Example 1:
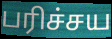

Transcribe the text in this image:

பரிச்சய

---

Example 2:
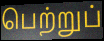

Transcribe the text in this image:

பெற்றுப்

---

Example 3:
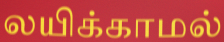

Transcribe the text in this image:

லயிக்காமல்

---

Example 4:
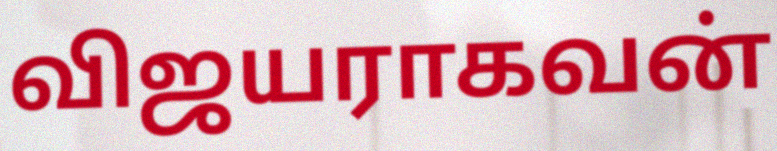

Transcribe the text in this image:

விஜயராகவன்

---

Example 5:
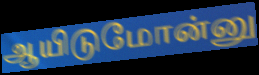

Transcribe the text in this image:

ஆயிடுமோன்னு